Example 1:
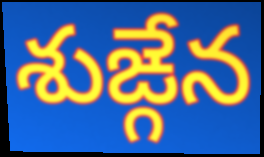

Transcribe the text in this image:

శుఙ్గేన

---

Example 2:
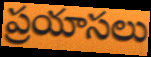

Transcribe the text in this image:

ప్రయాసలు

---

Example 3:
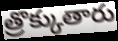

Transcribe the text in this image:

త్రొక్కుతారు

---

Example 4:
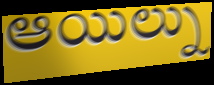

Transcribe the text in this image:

ఆయిల్ను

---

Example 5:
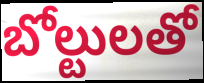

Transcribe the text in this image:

బోల్టులతో